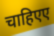
चाहिएए